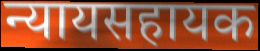
न्यायसहायक